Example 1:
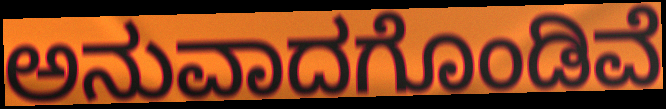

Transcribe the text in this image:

ಅನುವಾದಗೊಂಡಿವೆ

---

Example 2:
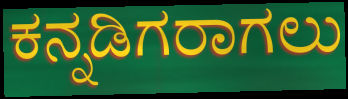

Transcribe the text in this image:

ಕನ್ನಡಿಗರಾಗಲು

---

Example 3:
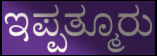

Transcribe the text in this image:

ಇಪ್ಪತ್ಮೂರು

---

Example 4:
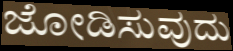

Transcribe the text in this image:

ಜೋಡಿಸುವುದು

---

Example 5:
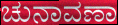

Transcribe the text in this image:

ಚುನಾವಣಾ